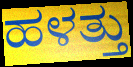
ಹಳತ್ತು